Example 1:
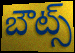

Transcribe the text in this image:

బౌట్స్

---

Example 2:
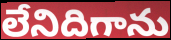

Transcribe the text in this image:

లేనిదిగాను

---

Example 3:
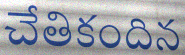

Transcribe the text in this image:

చేతికందిన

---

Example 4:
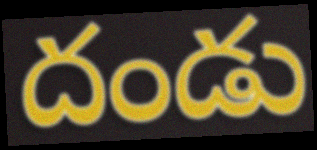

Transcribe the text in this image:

దండు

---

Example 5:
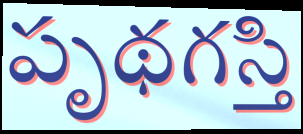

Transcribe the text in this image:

పృథగస్తి